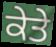
ਕੇਤੇ